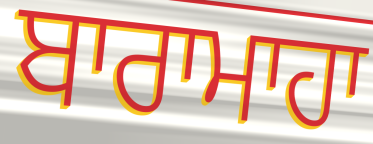
ਬਾਰਾਮਾਹਾ